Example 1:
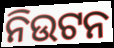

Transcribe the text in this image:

ନିଉଟନ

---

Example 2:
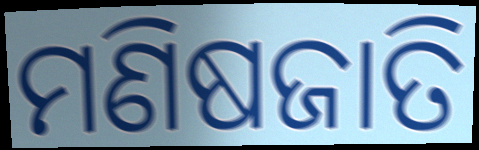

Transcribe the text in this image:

ମଣିଷଜାତି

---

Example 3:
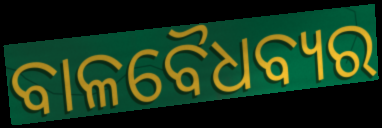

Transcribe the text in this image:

ବାଳବୈଧବ୍ୟର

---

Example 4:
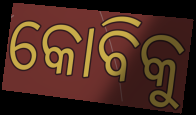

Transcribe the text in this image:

କୋବିକୁ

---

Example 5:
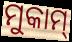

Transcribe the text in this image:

ମୁକାମ୍